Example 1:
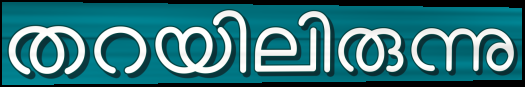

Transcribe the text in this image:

തറയിലിരുന്നു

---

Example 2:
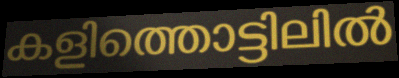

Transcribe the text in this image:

കളിത്തൊട്ടിലിൽ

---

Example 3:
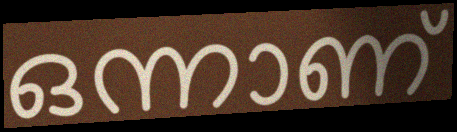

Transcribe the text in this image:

ഒന്നാണ്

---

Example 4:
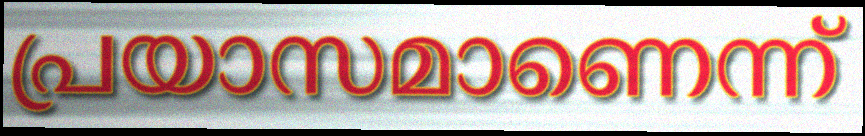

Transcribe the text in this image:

പ്രയാസമാണെന്ന്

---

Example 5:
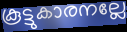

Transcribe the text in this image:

കൂട്ടുകാരനല്ലേ